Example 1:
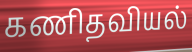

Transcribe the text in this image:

கணிதவியல்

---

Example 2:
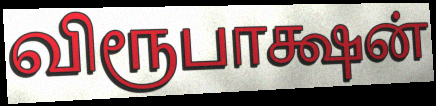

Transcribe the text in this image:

விரூபாக்ஷன்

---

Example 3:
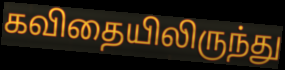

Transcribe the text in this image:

கவிதையிலிருந்து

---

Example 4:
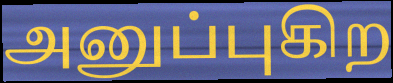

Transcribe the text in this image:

அனுப்புகிற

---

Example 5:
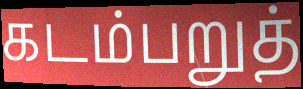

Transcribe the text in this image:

கடம்பறுத்